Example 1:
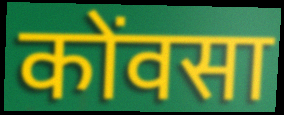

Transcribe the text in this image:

कोंवसा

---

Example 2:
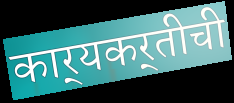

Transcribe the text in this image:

कार्यकर्तीची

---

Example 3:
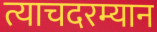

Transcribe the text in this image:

त्याचदरम्यान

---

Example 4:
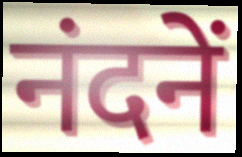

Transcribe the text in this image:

नंदनें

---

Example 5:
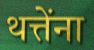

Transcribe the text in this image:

थत्तेंना